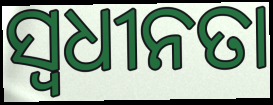
ସ୍ୱଧୀନତା